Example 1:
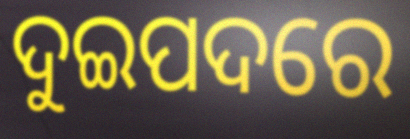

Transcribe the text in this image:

ଦୁଇପଦରେ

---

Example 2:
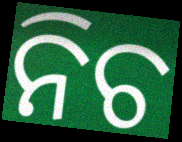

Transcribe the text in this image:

ନିଚ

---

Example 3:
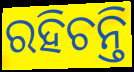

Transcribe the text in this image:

ରହିଚନ୍ତି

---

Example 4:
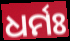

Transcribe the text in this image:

ଧର୍ମଃ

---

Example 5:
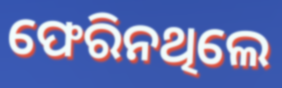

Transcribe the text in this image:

ଫେରିନଥିଲେ